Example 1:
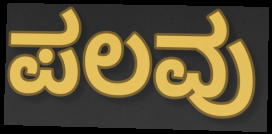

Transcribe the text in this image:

ಪಲವು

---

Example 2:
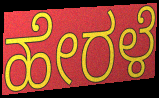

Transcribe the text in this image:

ಹೇರಳೆ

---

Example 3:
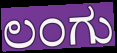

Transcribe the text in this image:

ಲಂಗು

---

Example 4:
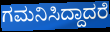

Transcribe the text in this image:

ಗಮನಿಸಿದ್ದಾದರೆ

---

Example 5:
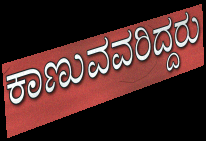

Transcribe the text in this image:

ಕಾಣುವವರಿದ್ದರು